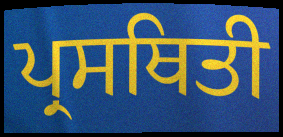
ਪ੍ਰਸਥਿਤੀ